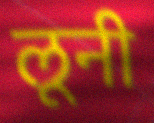
लूनी